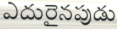
ఎదురైనపుడు